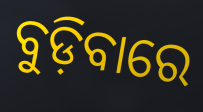
ବୁଡ଼ିବାରେ